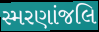
સ્મરણાંજલિ